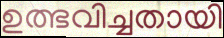
ഉത്ഭവിച്ചതായി